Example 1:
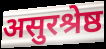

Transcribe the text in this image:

असुरश्रेष्ठ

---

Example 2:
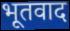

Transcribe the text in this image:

भूतवाद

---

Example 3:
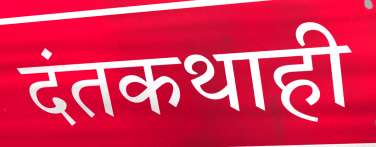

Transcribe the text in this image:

दंतकथाही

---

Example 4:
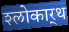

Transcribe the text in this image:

श्लोकार्थ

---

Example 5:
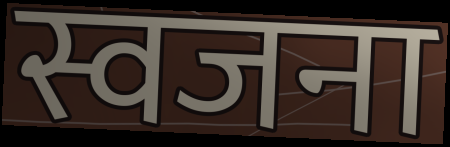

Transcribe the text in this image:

स्वजना